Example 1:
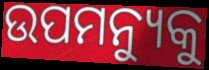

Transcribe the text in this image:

ଉପମନ୍ୟୁକୁ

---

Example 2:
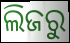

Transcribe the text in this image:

ଲିଜରୁ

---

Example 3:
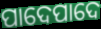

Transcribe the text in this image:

ପାଦେପାଦେ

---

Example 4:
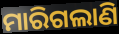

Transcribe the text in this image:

ମାରିଗଲାଣି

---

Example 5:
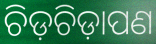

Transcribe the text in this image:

ଚିଡ଼ଚିଡ଼ାପଣ